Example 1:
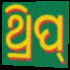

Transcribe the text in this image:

ଥ୍ରିପ୍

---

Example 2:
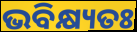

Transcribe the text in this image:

ଭବିକ୍ଷ୍ୟତଃ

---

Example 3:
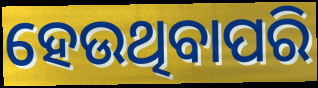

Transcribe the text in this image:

ହେଉଥିବାପରି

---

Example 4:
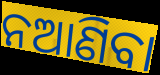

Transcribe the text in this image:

ନଆଣିବା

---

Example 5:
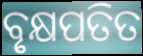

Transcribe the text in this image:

ବୃକ୍ଷପତିତ